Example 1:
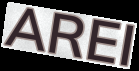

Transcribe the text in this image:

AREI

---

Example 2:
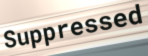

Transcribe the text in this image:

Suppressed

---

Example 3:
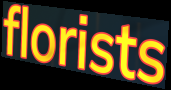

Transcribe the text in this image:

florists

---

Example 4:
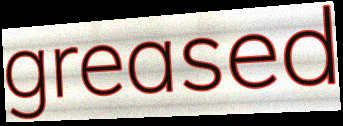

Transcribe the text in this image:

greased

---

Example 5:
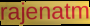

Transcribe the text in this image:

rajenatm